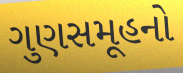
ગુણસમૂહનો